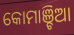
କୋମାଞ୍ଚିଆ